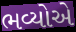
ભવ્યોએ